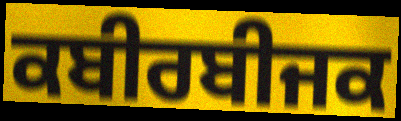
ਕਬੀਰਬੀਜਕ